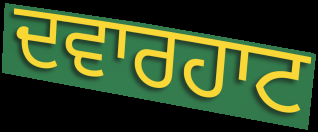
ਦਵਾਰਹਾਟ